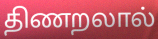
திணறலால்